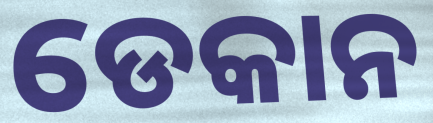
ଡେକାନ